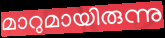
മാറുമായിരുന്നു